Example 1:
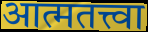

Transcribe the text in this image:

आत्मतत्त्वा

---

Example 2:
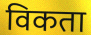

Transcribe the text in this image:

विकता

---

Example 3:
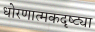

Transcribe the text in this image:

धोरणात्मकदृष्ट्या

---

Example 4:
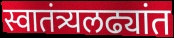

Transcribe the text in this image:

स्वातंत्र्यलढ्यांत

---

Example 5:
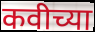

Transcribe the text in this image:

कवीच्या